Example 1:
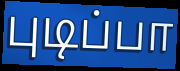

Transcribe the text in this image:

புடிப்பா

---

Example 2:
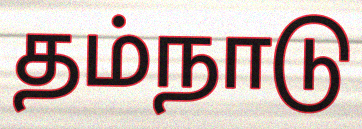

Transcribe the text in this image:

தம்நாடு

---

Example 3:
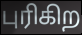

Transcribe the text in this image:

புரிகிற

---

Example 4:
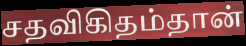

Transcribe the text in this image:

சதவிகிதம்தான்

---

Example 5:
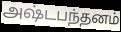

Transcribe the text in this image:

அஷ்டபந்தனம்